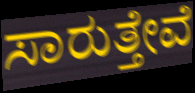
ಸಾರುತ್ತೇವೆ